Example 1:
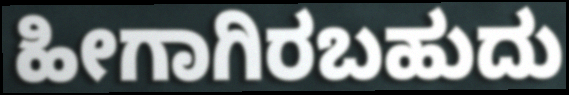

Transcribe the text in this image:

ಹೀಗಾಗಿರಬಹುದು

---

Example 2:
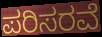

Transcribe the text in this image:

ಪರಿಸರವೆ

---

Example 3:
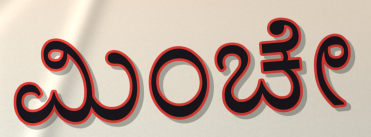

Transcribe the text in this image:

ಮಿಂಚೇ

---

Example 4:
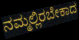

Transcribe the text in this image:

ನಮ್ಮಲ್ಲಿರಬೇಕಾದ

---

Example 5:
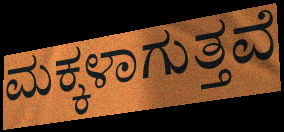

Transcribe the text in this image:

ಮಕ್ಕಳಾಗುತ್ತವೆ